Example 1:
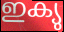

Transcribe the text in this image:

ഇക്യു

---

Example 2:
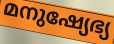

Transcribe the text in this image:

മനുഷ്യേഭ്യ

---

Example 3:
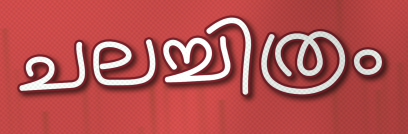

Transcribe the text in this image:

ചലച്ചിത്രം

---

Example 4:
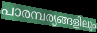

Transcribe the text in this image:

പാരമ്പര്യങ്ങളിലും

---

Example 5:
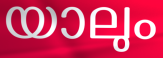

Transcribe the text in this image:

യാലും